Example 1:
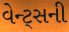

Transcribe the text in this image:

વેન્ટ્સની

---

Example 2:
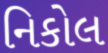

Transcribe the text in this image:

નિકોલ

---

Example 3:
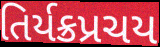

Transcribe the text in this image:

તિર્યક્રપ્રચય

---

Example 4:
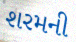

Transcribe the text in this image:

શરમની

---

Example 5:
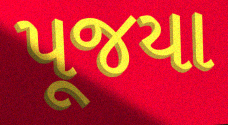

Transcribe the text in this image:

પૂજયા